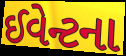
ઈવેન્ટના